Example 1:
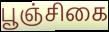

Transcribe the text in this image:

பூஞ்சிகை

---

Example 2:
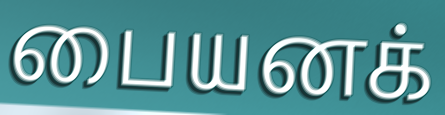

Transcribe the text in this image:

பையனக்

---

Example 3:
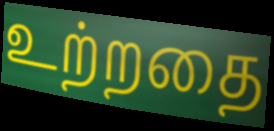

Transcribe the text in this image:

உற்றதை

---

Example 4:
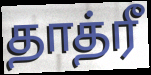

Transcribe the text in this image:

தாத்ரீ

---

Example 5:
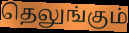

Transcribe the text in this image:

தெலுங்கும்